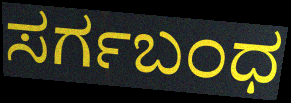
ಸರ್ಗಬಂಧ